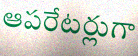
ఆపరేటర్లుగా